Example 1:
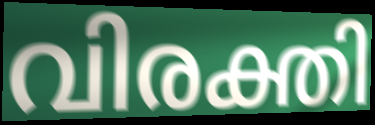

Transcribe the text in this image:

വിരക്തി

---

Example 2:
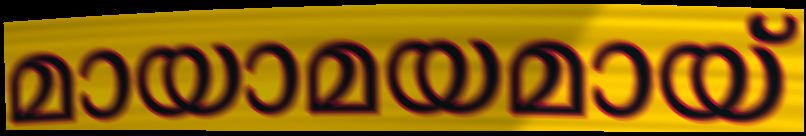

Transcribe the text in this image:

മായാമയമായ്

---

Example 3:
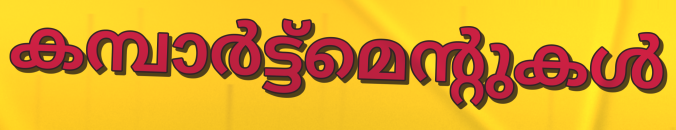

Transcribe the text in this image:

കമ്പാർട്ട്മെന്റുകൾ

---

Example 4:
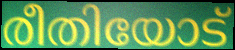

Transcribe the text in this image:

രീതിയോട്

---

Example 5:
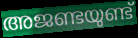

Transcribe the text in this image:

അജണ്ടയുണ്ട്